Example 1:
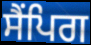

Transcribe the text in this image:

ਸੈਂਪਿਗ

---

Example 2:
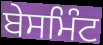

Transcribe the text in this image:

ਬੇਸਮਿੰਟ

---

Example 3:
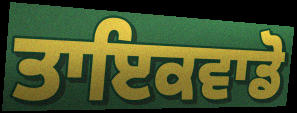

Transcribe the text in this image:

ਤਾਇਕਵਾਡੋ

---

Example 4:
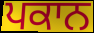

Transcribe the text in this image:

ਪਕਾਨ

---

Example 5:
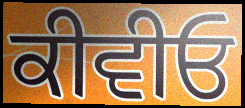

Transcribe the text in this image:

ਕੀਵੀਓ